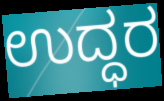
ಉದ್ಧರ